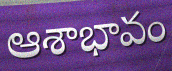
ఆశాభావం